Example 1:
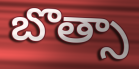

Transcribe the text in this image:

బొత్సా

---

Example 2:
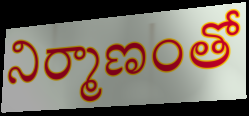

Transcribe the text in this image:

నిర్మాణంతో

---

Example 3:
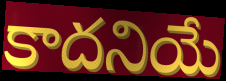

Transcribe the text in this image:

కాదనియే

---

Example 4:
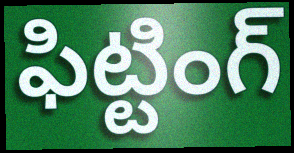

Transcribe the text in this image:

ఫిట్టింగ్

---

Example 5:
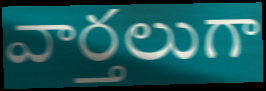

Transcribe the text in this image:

వార్తలుగా